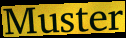
Muster